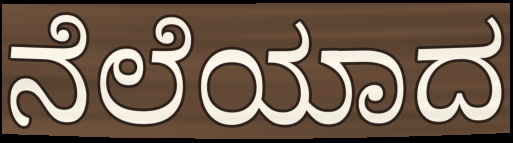
ನೆಲೆಯಾದ